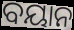
ବୟାନ